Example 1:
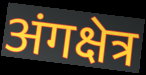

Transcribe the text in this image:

अंगक्षेत्र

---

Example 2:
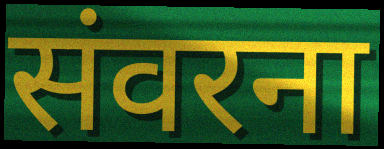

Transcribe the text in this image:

संवरना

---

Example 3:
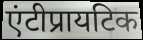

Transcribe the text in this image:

एंटीप्रायटिक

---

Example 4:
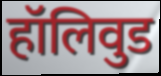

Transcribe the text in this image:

हॉलिवुड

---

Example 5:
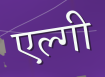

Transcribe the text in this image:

एल्गी